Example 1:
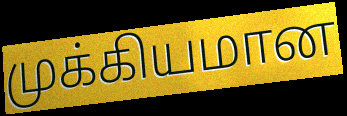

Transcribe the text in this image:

முக்கியமான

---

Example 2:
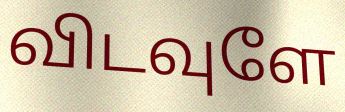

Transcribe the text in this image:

விடவுளே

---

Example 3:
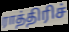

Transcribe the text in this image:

ராத்திரிச்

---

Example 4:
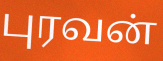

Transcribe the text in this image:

புரவன்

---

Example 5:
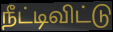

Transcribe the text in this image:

நீட்டிவிட்டு